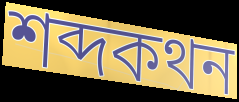
শব্দকথন